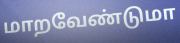
மாறவேண்டுமா